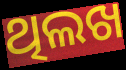
ଥିଲଖ